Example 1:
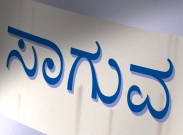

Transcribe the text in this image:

ಸಾಗುವ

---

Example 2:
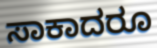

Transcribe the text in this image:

ಸಾಕಾದರೂ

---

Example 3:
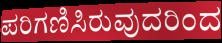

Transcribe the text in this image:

ಪರಿಗಣಿಸಿರುವುದರಿಂದ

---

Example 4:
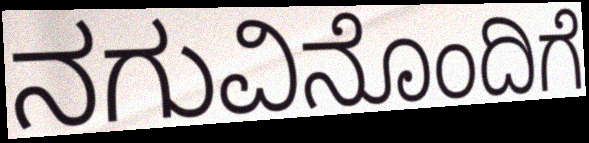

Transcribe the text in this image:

ನಗುವಿನೊಂದಿಗೆ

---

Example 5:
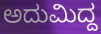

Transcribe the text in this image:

ಅದುಮಿದ್ದ